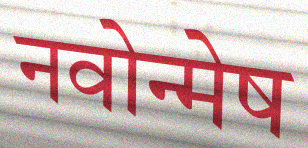
नवोन्‍मेष